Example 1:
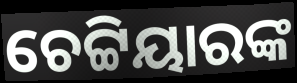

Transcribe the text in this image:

ଚେଟ୍ଟିୟାରଙ୍କ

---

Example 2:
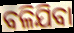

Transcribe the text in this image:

ବଳିଯିବା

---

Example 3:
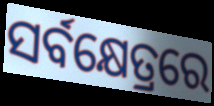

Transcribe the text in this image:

ସର୍ବକ୍ଷେତ୍ରରେ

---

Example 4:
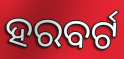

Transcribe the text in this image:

ହରବର୍ଟ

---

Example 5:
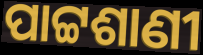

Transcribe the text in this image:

ପାଟ୍ଟଶାଣୀ